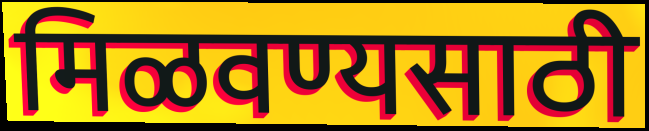
मिळवण्यसाठी